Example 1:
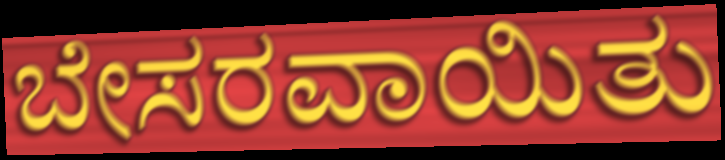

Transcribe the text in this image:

ಬೇಸರವಾಯಿತು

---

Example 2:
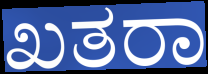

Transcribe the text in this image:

ಖತರಾ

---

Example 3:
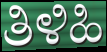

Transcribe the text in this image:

ತಿಳಿಹಿ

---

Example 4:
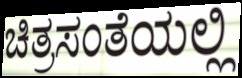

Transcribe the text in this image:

ಚಿತ್ರಸಂತೆಯಲ್ಲಿ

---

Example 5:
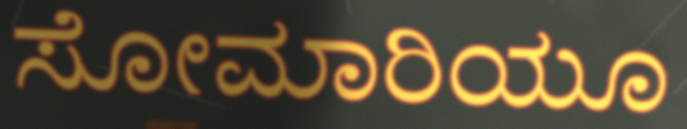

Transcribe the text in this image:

ಸೋಮಾರಿಯೂ